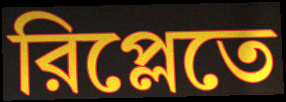
রিপ্লেতে